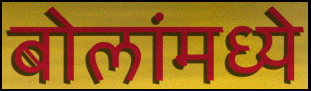
बोलांमध्ये